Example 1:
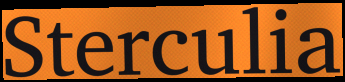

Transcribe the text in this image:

Sterculia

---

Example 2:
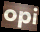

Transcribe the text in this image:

opi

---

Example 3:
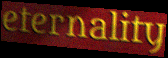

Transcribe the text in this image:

eternality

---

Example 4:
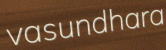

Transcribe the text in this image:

vasundhara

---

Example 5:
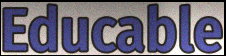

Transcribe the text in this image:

Educable